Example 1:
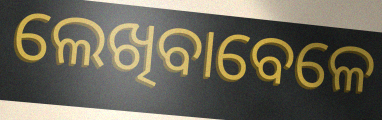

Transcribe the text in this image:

ଲେଖିବାବେଳେ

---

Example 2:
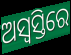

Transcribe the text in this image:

ଅସ୍ୱସ୍ତିରେ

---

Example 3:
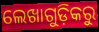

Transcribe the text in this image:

ଲେଖାଗୁଡ଼ିକରୁ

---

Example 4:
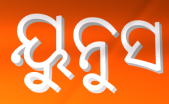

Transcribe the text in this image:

ୟୁନୁସ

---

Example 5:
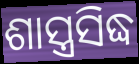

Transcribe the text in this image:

ଶାସ୍ତ୍ରସିଦ୍ଧ